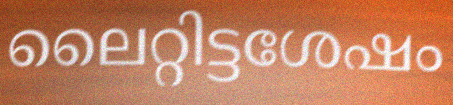
ലൈറ്റിട്ടശേഷം